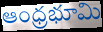
ఆంధ్రభూమి